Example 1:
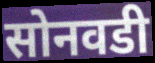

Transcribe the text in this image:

सोनवडी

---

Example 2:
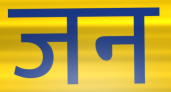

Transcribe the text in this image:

जन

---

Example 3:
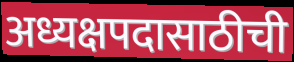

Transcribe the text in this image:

अध्यक्षपदासाठीची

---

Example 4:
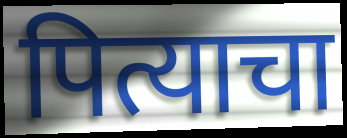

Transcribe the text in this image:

पित्याचा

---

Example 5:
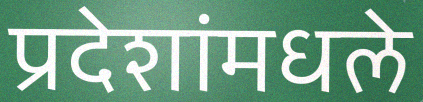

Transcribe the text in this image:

प्रदेशांमधले